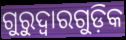
ଗୁରୁଦ୍ବାରଗୁଡ଼ିକ